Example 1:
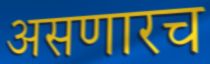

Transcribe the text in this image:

असणारच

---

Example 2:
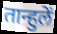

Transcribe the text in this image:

तान्हुलें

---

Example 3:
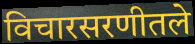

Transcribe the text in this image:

विचारसरणीतले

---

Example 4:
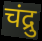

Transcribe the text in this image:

चंद्रु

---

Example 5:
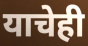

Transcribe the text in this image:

याचेही